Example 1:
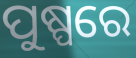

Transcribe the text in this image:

ପୁଷ୍ପରେ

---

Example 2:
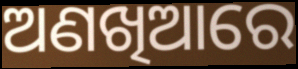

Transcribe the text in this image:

ଅଣଖିଆରେ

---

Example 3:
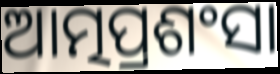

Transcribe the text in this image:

ଆତ୍ମପ୍ରଶଂସା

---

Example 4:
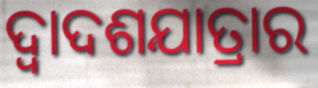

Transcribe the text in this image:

ଦ୍ୱାଦଶଯାତ୍ରାର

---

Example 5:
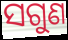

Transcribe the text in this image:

ସଗୁଣ